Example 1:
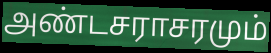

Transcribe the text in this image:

அண்டசராசரமும்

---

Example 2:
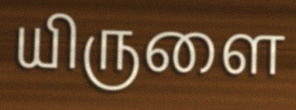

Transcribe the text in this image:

யிருளை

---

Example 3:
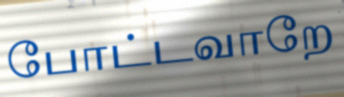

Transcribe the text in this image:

போட்டவாறே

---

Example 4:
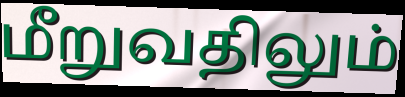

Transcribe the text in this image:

மீறுவதிலும்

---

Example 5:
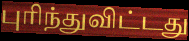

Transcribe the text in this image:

புரிந்துவிட்டது